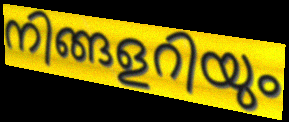
നിങ്ങളറിയും